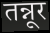
तन्नूर